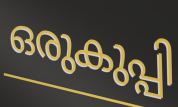
ഒരുകുപ്പി